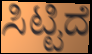
ಸಿಟ್ಟಿದೆ